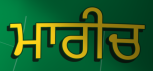
ਮਾਰੀਚ